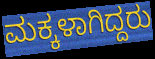
ಮಕ್ಕಳಾಗಿದ್ದರು